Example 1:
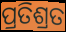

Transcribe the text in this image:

ପ୍ରତିଶ୍ରତ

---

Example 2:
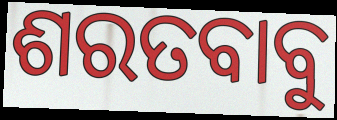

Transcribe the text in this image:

ଶରତବାବୁ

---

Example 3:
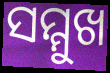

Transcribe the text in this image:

ସମ୍ମୁଖ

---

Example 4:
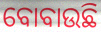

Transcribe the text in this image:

ବୋବାଉଛି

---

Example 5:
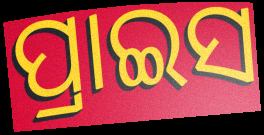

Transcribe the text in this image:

ପ୍ରାଇସ